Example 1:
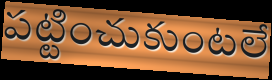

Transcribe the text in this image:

పట్టించుకుంటలే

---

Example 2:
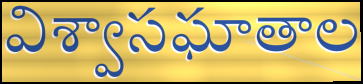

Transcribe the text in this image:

విశ్వాసఘాతాల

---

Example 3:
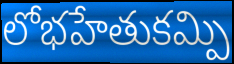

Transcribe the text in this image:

లోభహేతుకమ్పి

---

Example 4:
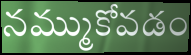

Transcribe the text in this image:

నమ్ముకోవడం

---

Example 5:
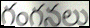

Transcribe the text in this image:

గంగనలు